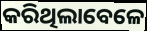
କରିଥିଲାବେଳେ